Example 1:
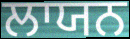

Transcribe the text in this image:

ਲਾਯਨ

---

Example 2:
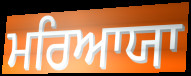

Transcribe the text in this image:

ਮਰਿਆਯਾ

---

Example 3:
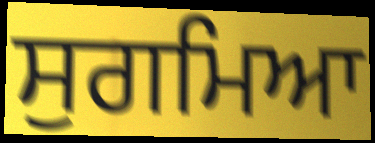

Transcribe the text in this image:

ਸੁਗਮਿਆ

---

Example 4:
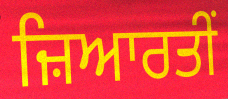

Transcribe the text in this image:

ਜ਼ਿਆਰਤੀਂ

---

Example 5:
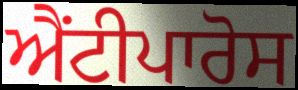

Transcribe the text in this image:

ਐਂਟੀਪਾਰੋਸ